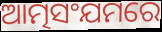
ଆତ୍ମସଂଯମରେ